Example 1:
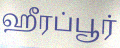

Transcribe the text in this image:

ஹீரப்பூர்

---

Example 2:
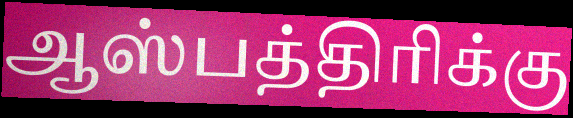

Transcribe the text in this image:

ஆஸ்பத்திரிக்கு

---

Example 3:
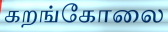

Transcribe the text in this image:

கறங்கோலை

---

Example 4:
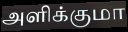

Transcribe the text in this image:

அளிக்குமா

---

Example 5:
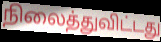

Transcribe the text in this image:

நிலைத்துவிட்டது